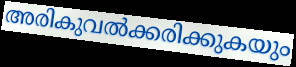
അരികുവൽക്കരിക്കുകയും